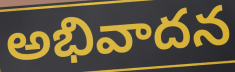
అభివాదన